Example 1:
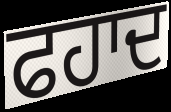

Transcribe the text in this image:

ਫਹਾਦ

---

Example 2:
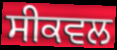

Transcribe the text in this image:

ਸੀਕਵਲ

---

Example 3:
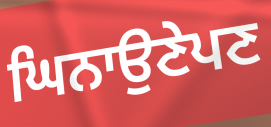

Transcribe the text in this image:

ਘਿਨਾਉਣੇਪਣ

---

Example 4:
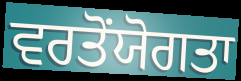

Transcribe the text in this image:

ਵਰਤੋਂਯੋਗਤਾ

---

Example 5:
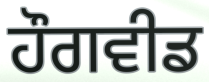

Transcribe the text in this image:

ਹੌਗਵੀਡ